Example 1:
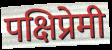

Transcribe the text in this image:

पक्षिप्रेमी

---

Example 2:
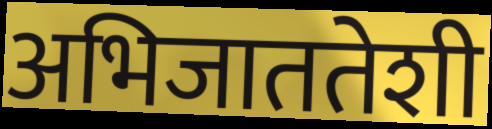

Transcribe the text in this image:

अभिजाततेशी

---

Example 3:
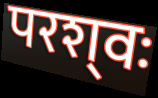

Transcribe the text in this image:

परश्वः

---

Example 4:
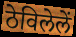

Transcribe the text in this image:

ठेविलेलें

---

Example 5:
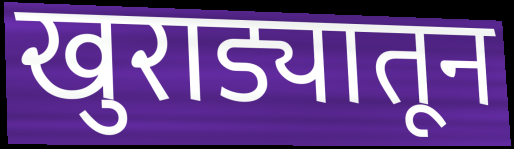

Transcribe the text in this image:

खुराड्यातून